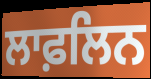
ਲਾਫ਼ਲਿਨ